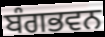
ਬੰਗਭਵਨ